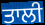
ਤਾਲੀ